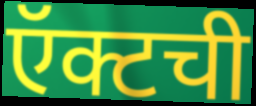
ऍक्टची